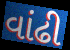
વાંઢી